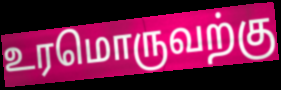
உரமொருவற்கு